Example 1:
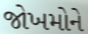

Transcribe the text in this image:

જોખમોને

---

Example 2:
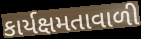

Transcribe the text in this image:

કાર્યક્ષમતાવાળી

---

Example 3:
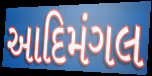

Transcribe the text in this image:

આદિમંગલ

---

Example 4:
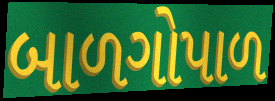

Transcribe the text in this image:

બાળગોપાળ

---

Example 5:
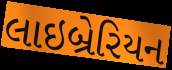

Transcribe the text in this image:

લાઇબ્રેરિયન